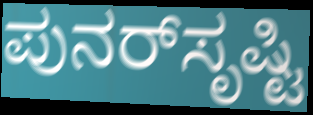
ಪುನರ್‌ಸೃಷ್ಟಿ